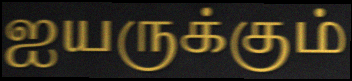
ஐயருக்கும்